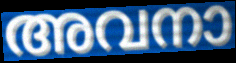
അവനാ